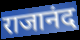
राजानंद